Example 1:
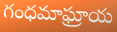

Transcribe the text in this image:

గంధమాఘ్రాయ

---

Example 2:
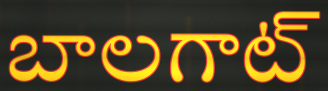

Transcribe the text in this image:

బాలగాట్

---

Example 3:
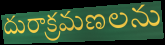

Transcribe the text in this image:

దురాక్రమణలను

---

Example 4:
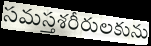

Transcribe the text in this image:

సమస్తశరీరులకును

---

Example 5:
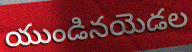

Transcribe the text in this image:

యుండినయెడల